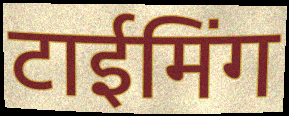
टाईमिंग